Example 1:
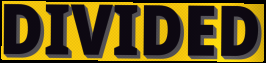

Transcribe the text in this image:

DIVIDED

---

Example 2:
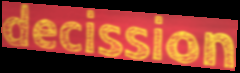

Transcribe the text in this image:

decission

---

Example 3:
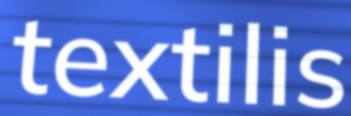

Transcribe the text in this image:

textilis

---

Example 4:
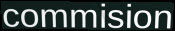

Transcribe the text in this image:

commision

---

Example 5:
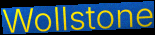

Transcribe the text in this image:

Wollstone